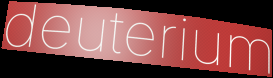
deuterium